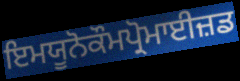
ਇਮਯੂਨੋਕੌਮਪ੍ਰੋਮਾਈਜ਼ਡ